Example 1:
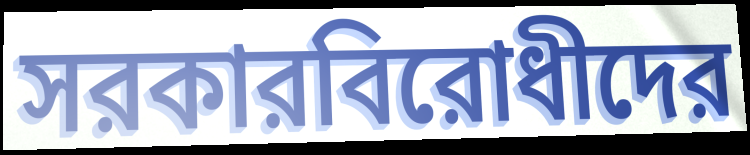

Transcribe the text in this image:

সরকারবিরোধীদের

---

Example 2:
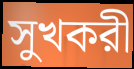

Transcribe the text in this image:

সুখকরী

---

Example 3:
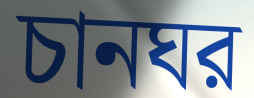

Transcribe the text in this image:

চানঘর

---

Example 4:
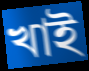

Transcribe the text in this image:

খাই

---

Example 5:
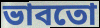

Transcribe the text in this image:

ভাবতো